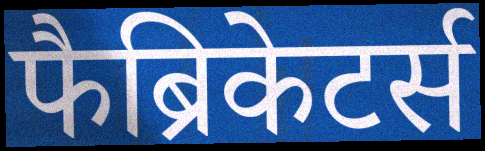
फैब्रिकेटर्स